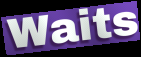
Waits